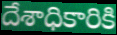
దేశాధికారికి